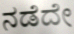
ನಡೆದೇ